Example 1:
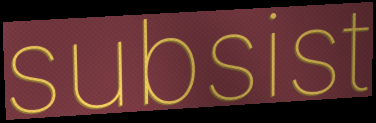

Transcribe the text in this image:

subsist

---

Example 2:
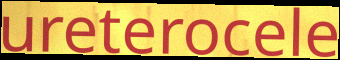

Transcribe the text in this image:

ureterocele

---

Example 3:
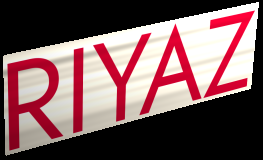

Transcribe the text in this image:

RIYAZ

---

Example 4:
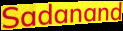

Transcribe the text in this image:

Sadanand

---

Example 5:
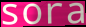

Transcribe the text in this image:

sora